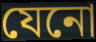
যেনো